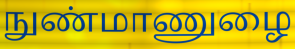
நுண்மாணுழை